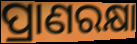
ପ୍ରାଣରକ୍ଷା